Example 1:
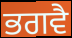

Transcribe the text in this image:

ਭਗਵੈ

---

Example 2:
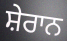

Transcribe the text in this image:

ਸ਼ੇਰਾਨ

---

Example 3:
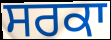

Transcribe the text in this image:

ਸਰਕਾ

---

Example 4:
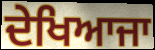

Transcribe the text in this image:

ਦੇਖਿਆਜਾ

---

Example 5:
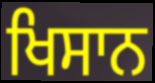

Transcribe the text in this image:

ਖਿਸਾਨ